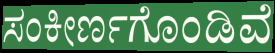
ಸಂಕೀರ್ಣಗೊಂಡಿವೆ